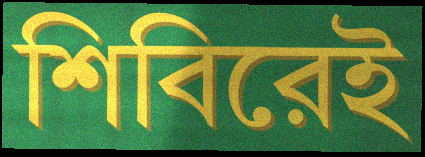
শিবিরেই